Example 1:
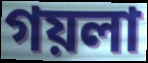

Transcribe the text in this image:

গয়লা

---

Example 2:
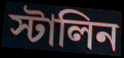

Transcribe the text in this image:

স্টালিন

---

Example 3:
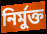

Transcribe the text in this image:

নির্মুক্ত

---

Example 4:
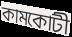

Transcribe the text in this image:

কামকোটী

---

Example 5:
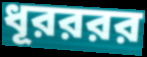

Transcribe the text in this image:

ধূরররর